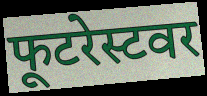
फूटरेस्टवर